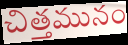
చిత్తమునం